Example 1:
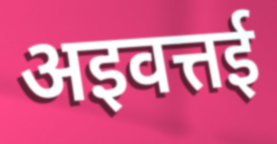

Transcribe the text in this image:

अइवत्तई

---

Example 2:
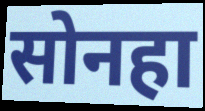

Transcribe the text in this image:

सोनहा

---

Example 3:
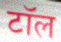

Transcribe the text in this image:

टॉल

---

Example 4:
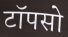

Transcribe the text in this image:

टॉपसो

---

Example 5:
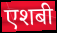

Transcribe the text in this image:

एशबी